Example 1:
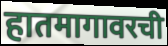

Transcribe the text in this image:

हातमागावरची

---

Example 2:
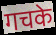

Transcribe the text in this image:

गचके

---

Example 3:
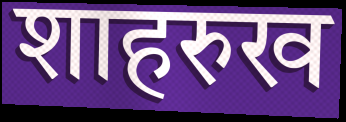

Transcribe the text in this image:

शाहरुख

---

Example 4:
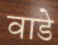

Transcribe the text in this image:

वाडे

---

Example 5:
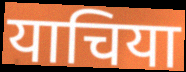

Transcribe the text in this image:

याचिया